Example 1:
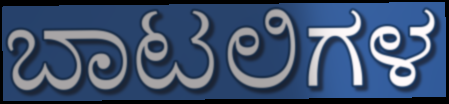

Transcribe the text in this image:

ಬಾಟಲಿಗಳ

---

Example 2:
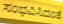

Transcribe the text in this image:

ಸಂಭವಿಸಿದಂತೆ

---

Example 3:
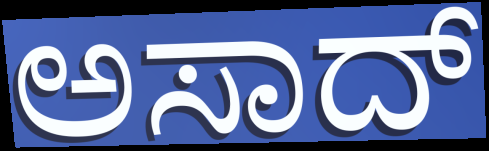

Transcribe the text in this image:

ಅಸಾದ್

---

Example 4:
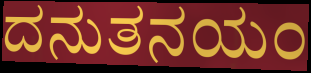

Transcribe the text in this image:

ದನುತನಯಂ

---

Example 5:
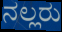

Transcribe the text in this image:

ನಲ್ಲರು